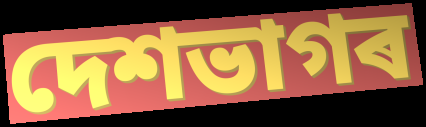
দেশভাগৰ